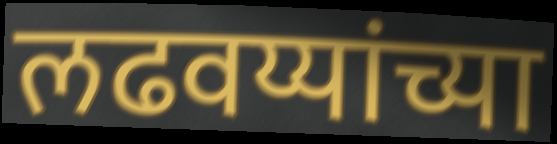
लढवय्यांच्या